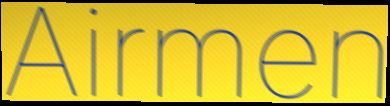
Airmen